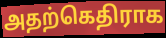
அதற்கெதிராக